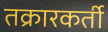
तक्रारकर्ती